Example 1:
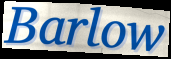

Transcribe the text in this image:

Barlow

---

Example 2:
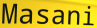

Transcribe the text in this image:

Masani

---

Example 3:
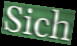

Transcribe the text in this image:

Sich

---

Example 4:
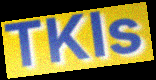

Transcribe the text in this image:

TKIs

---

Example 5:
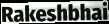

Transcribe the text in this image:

Rakeshbhai